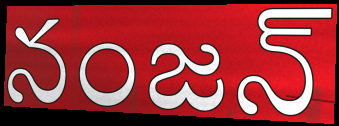
నంజన్